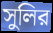
সুলির